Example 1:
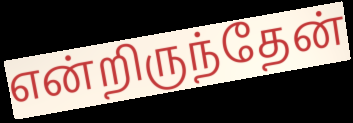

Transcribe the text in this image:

என்றிருந்தேன்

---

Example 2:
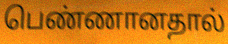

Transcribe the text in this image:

பெண்ணானதால்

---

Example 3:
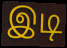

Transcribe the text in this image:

இடி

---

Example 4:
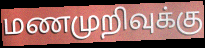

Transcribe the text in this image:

மணமுறிவுக்கு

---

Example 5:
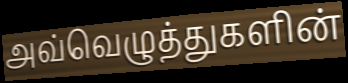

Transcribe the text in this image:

அவ்வெழுத்துகளின்